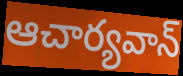
ఆచార్యవాన్